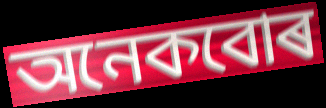
অনেকবোৰ